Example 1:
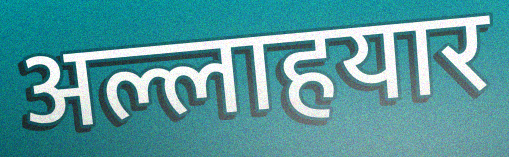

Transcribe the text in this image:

अल्लाहयार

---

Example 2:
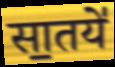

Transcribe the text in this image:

सा॒तये॑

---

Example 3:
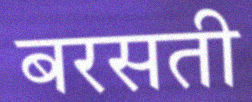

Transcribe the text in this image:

बरसती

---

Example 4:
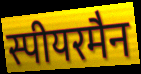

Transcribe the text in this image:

स्पीयरमैन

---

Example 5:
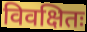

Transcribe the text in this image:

विवक्षितः